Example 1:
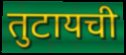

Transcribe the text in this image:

तुटायची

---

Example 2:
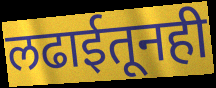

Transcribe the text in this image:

लढाईतूनही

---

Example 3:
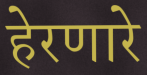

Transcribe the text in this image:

हेरणारे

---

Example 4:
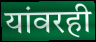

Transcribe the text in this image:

यांवरही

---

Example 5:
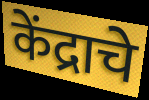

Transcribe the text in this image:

केंद्राचे